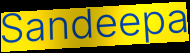
Sandeepa